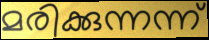
മരിക്കുന്നന്ന്